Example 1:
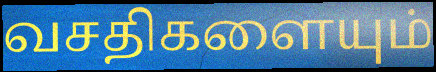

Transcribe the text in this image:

வசதிகளையும்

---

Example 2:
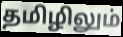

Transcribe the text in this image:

தமிழிலும்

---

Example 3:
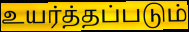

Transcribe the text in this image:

உயர்த்தப்படும்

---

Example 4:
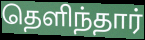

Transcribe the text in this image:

தெளிந்தார்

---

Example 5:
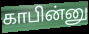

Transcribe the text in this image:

காபின்னு